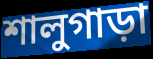
শালুগাড়া